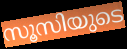
സൂസിയുടെ